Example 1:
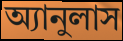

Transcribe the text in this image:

অ্যানুলাস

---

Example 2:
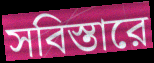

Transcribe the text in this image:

সবিস্তারে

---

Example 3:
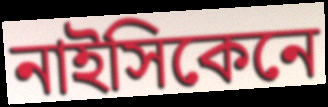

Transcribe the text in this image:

নাইসিকেনে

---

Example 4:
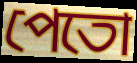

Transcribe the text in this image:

পেতো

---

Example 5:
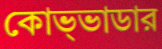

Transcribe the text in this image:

কোভ্ভাডার